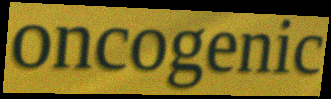
oncogenic